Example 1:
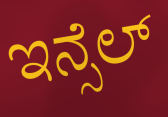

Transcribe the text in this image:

ಇನ್ಸೆಲ್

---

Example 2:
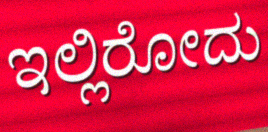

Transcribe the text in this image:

ಇಲ್ಲಿರೋದು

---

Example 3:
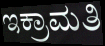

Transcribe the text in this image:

ಇಕ್ರಾಮತಿ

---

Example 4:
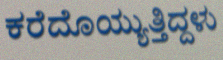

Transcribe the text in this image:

ಕರೆದೊಯ್ಯುತ್ತಿದ್ದಳು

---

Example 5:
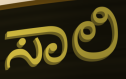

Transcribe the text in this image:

ಸಾಲಿ